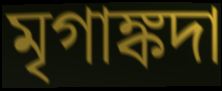
মৃগাঙ্কদা